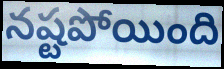
నష్టపోయింది